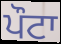
ਪੌਟਾ